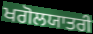
ਖਗੋਲਯਾਤਰੀ